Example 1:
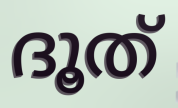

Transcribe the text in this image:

ദൂത്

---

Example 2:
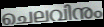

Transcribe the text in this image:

ചെലവിനും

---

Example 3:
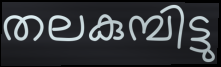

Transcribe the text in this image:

തലകുമ്പിട്ടു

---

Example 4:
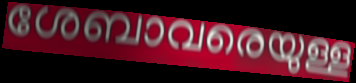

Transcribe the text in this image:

ശേബാവരെയുള്ള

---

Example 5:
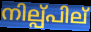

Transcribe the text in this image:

നില്പ്പില്